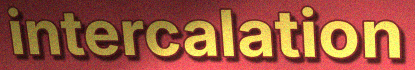
intercalation